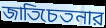
জাতিচেতনার